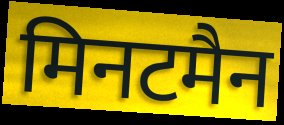
मिनटमैन